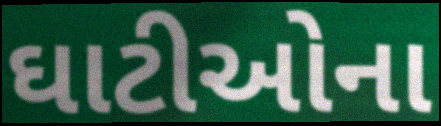
ઘાટીઓના